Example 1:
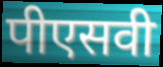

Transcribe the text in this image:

पीएसवी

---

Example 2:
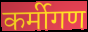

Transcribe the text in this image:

कर्मीगण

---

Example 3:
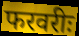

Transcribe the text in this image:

फरवरीः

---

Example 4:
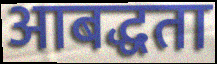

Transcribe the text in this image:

आबद्धता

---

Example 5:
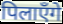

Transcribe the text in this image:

पिलाएँगे